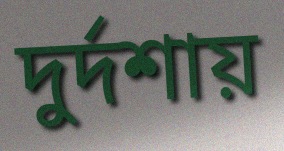
দুর্দশায়